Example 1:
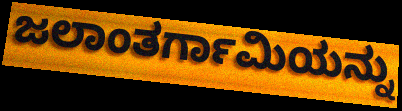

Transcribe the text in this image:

ಜಲಾಂತರ್ಗಾಮಿಯನ್ನು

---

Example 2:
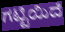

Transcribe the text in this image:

ಗಟ್ಟಿಯಿದೆ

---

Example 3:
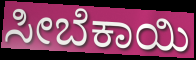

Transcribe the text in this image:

ಸೀಬೆಕಾಯಿ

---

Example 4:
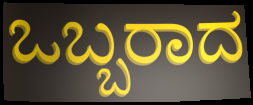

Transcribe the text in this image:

ಒಬ್ಬರಾದ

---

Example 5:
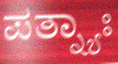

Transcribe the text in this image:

ಪತ್ನ್ಯಾಃ